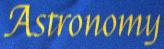
Astronomy